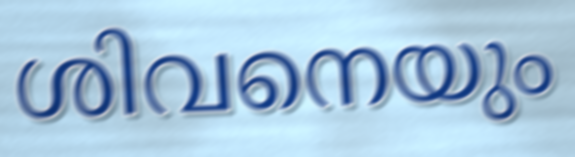
ശിവനെയും